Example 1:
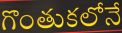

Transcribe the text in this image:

గొంతుకలోనే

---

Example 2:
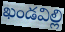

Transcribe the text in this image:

ఖండవిల్లి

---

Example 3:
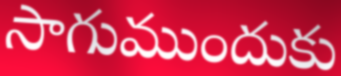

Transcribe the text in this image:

సాగుముందుకు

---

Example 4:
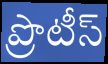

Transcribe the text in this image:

ప్రొటీస్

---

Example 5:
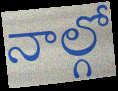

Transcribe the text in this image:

నాల్గో